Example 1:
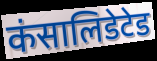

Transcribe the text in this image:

कंसालिडेटेड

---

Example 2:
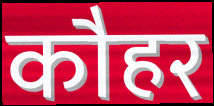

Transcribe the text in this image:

कौहर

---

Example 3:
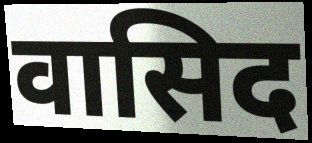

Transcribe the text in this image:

वासिद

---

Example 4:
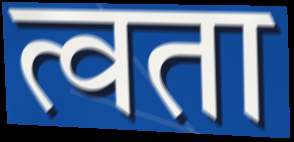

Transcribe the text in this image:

त्वता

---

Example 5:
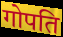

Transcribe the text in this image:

गोपति